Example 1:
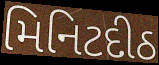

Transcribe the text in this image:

મિનિટદીઠ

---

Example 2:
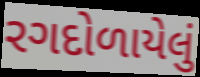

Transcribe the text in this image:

રગદોળાયેલું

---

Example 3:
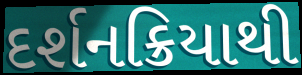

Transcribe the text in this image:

દર્શનક્રિયાથી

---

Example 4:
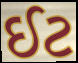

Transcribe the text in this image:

ઈટ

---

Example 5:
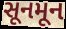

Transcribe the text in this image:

સૂનમૂન